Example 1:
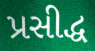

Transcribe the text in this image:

પ્રસીદ્ધ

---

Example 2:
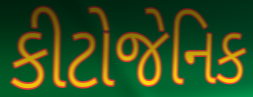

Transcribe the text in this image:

કીટોજેનિક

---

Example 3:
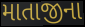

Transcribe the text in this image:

માતાજીના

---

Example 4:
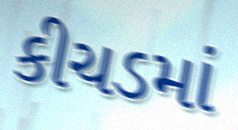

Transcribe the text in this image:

કીચડમાં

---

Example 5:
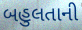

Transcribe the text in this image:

બહુલતાની